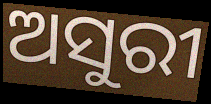
ଅସୁରୀ